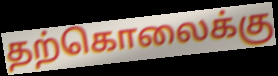
தற்கொலைக்கு